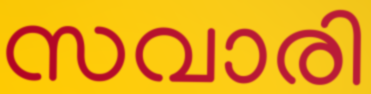
സവാരി